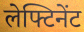
लेफ्टिनेंट